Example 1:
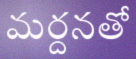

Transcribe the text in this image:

మర్దనతో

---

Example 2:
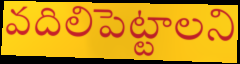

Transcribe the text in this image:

వదిలిపెట్టాలని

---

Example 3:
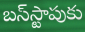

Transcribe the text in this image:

బస్‌స్టాపుకు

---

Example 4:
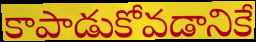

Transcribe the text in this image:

కాపాడుకోవడానికే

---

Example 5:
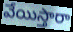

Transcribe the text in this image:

వేయిస్తారా